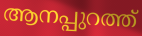
ആനപ്പുറത്ത്